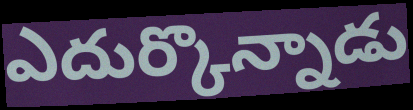
ఎదుర్కొన్నాడు